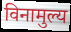
विनामुल्य